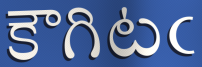
కౌగిటఁ